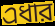
এধার